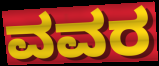
ವವರ